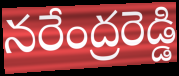
నరేంద్రరెడ్డి